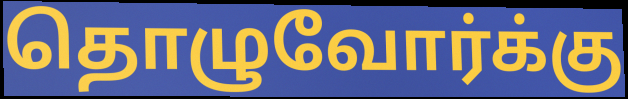
தொழுவோர்க்கு